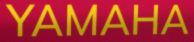
YAMAHA